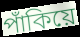
পাঁকিয়ে